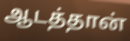
ஆடத்தான்